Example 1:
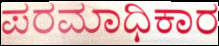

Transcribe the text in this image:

ಪರಮಾಧಿಕಾರ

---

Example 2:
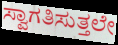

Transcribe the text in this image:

ಸ್ವಾಗತಿಸುತ್ತಲೇ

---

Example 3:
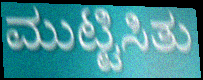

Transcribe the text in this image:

ಮುಟ್ಟಿಸಿತು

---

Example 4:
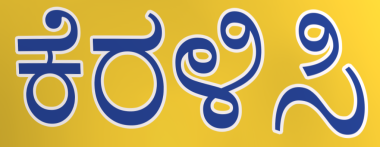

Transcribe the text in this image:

ಕೆರಳಿಸಿ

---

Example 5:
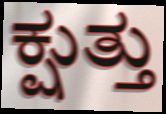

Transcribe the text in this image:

ಕ್ಷುತ್ತು